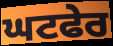
ਘਟਫੇਰ